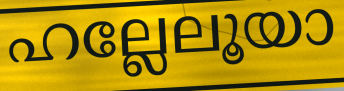
ഹല്ലേലൂയാ